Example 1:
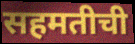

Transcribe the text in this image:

सहमतीची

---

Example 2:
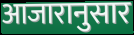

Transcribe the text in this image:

आजारानुसार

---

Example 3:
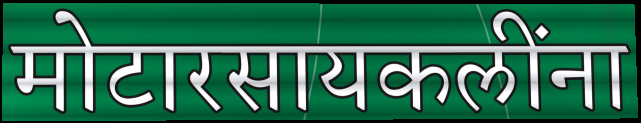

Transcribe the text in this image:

मोटारसायकलींना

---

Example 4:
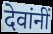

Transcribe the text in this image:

देवांनीं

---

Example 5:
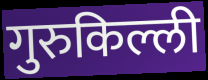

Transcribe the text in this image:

गुरुकिल्ली